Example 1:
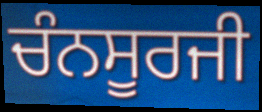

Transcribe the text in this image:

ਚੰਨਸੂਰਜੀ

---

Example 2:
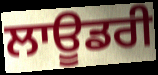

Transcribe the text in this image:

ਲਾਊਡਰੀ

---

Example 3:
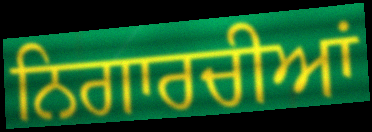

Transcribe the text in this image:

ਨਿਗਾਰਚੀਆਂ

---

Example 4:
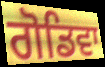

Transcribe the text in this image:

ਗੋਡਿਵਾ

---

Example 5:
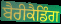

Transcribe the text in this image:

ਬੈਰੀਕੈਡਿੰਗ